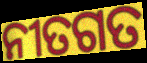
ନୀତଗତ